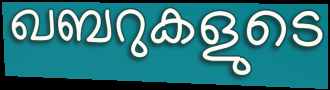
ഖബറുകളുടെ